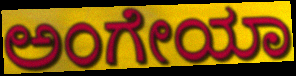
ಅಂಗೇಯಾ